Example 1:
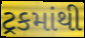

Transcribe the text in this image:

ટ્રકમાંથી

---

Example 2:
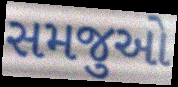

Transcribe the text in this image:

સમજુઓ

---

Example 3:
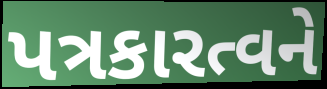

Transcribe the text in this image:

પત્રકારત્વને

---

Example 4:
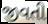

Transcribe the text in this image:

જીવતી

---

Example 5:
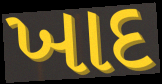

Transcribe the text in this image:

ખાદ